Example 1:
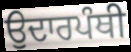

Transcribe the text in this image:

ਉਦਾਰਪੰਥੀ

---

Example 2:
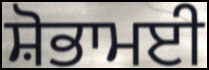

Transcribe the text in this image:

ਸ਼ੋਭਾਮਈ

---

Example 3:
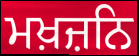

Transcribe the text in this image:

ਮਖ਼ਜ਼ਨਿ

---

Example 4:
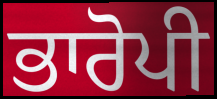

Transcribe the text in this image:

ਭਾਰੋਪੀ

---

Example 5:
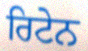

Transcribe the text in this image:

ਰਿਟੇਨ